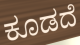
ಕೂಡದೆ